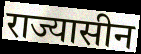
राज्यासीन